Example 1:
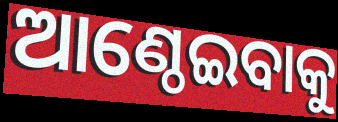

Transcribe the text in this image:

ଆଣ୍ଠେଇବାକୁ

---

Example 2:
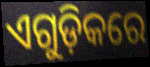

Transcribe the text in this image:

ଏଗୁଡ଼ିକରେ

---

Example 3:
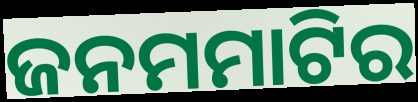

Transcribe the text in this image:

ଜନମମାଟିର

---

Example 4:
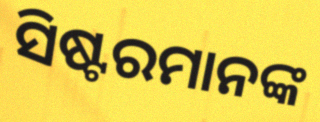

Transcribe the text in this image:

ସିଷ୍ଟରମାନଙ୍କ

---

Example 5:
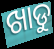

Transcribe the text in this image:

ଖାଡୁ